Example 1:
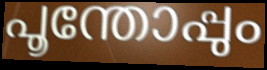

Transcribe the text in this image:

പൂന്തോപ്പും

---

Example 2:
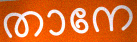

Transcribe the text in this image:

താനേ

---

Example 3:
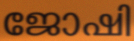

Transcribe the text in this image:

ജോഷി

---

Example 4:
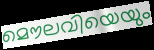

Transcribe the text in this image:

മൌലവിയെയും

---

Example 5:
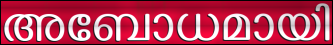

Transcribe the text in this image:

അബോധമായി